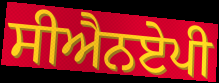
ਸੀਐਨਏਪੀ